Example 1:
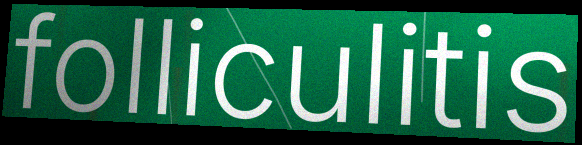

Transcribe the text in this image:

folliculitis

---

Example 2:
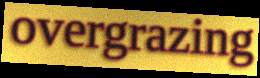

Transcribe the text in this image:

overgrazing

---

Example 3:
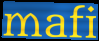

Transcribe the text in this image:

mafi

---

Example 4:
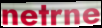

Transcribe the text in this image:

netrne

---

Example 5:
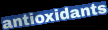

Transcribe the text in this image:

antioxidants